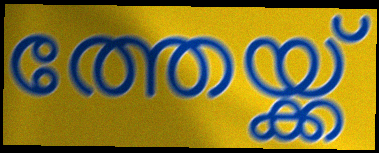
ത്തേയ്ക്ക്